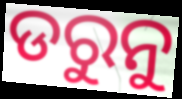
ଡରୁନୁ